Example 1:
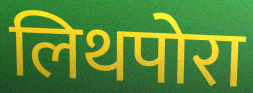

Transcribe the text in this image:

लिथपोरा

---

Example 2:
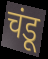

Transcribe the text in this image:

चंडू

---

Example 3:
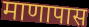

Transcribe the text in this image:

माणापास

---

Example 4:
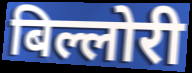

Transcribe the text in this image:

बिल्लोरी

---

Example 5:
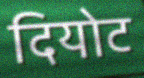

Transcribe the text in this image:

दियोट